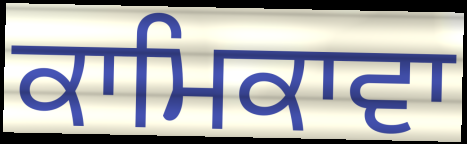
ਕਾਮਿਕਾਵਾ